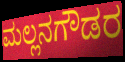
ಮಲ್ಲನಗೌಡರ